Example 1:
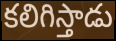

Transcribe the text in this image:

కలిగిస్తాడు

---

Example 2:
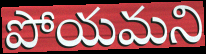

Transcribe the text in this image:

పోయమని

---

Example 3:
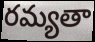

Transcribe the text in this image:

రమ్యతా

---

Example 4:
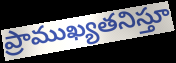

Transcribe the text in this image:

ప్రాముఖ్యతనిస్తూ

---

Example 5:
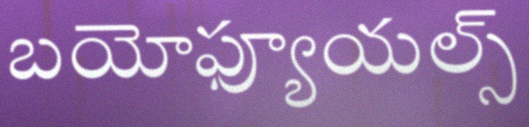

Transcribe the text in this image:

బయోఫ్యూయల్స్